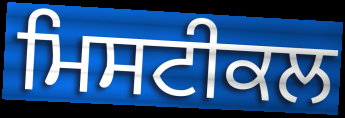
ਮਿਸਟੀਕਲ